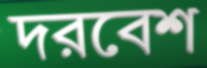
দরবেশ